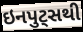
ઇનપુટ્સથી